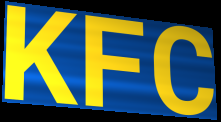
KFC